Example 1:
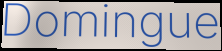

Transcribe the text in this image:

Domingue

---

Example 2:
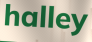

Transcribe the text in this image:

halley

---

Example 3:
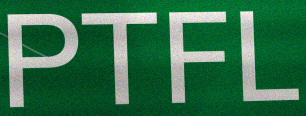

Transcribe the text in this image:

PTFL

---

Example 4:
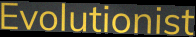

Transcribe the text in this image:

Evolutionist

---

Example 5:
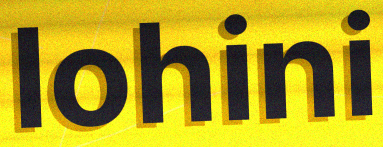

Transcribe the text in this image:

lohini